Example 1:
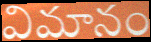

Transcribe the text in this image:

విమానం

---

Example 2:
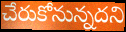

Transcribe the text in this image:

చేరుకోనున్నదని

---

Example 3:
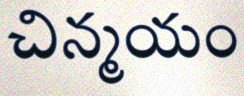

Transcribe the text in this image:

చిన్మయం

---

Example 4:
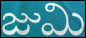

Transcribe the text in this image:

జుమి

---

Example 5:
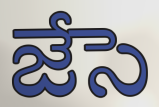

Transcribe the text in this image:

జేసె